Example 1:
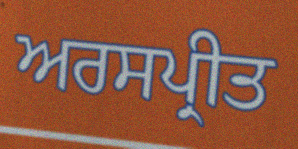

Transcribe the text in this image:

ਅਰਸਪ੍ਰੀਤ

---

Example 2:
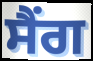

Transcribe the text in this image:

ਸੈਂਗ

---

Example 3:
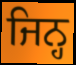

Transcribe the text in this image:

ਜਿਨ੍ਹ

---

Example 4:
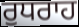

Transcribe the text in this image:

ਰੁਧਰਾਹ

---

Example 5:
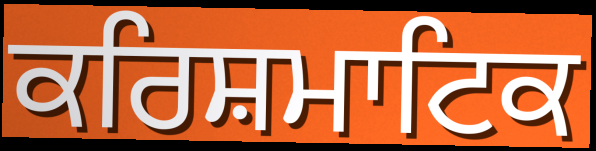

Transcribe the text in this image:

ਕਰਿਸ਼ਮਾਟਿਕ